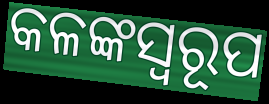
କଳଙ୍କସ୍ୱରୂପ